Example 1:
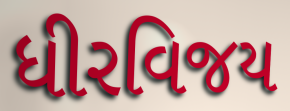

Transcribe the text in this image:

ધીરવિજય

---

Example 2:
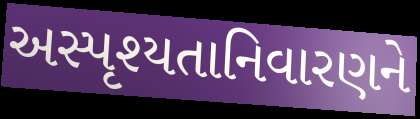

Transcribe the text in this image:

અસ્પૃશ્યતાનિવારણને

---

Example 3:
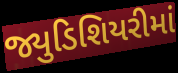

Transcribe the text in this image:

જ્યુડિશિયરીમાં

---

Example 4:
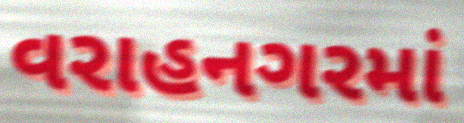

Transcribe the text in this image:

વરાહનગરમાં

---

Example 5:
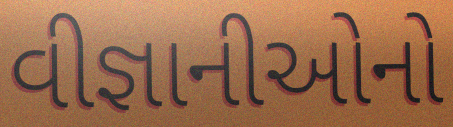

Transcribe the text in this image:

વીજ્ઞાનીઓનો